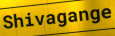
Shivagange